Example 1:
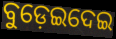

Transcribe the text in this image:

ବୁଡ଼େଇଦେଇ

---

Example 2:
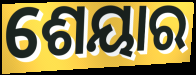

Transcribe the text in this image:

ଶେୟାର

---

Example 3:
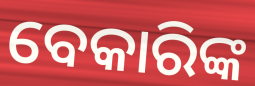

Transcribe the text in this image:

ବେକାରିଙ୍କ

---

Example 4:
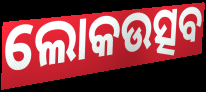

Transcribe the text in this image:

ଲୋକଉତ୍ସବ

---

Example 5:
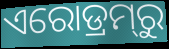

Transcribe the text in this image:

ଏରୋଡ୍ରମ୍‍ରୁ